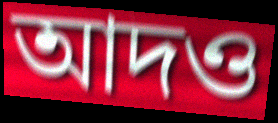
আদও